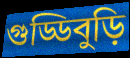
গুড্ডিবুড়ি